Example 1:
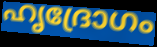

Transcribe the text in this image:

ഹൃദ്രോഗം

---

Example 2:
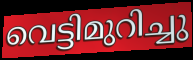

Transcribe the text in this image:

വെട്ടിമുറിച്ചു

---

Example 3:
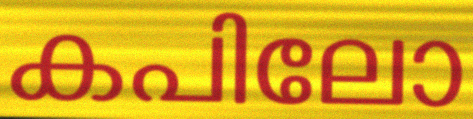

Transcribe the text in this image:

കപിലോ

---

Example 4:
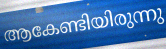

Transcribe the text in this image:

ആകേണ്ടിയിരുന്നു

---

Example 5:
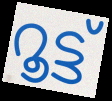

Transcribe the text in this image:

റൂട്ട്